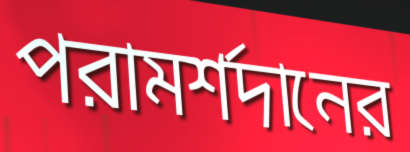
পরামর্শদানের